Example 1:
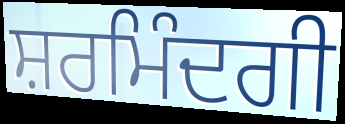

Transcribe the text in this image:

ਸ਼ਰਮਿੰਦਗੀ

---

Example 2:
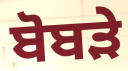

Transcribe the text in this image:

ਬੋਬੜੇ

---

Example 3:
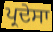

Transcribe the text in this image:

ਪ੍ਰਦੇਸਾ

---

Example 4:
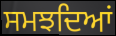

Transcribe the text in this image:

ਸਮਝਦਿਆਂ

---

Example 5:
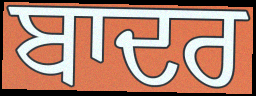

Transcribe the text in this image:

ਬਾਦਰ